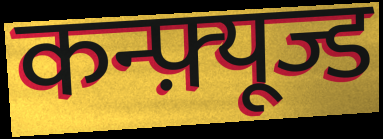
कन्फ़्यूज्ड